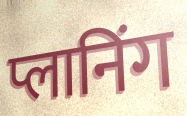
प्‍लानिंग